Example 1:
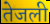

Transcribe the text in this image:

तेजली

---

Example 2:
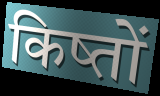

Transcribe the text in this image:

किष्तों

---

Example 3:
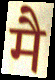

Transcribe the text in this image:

मै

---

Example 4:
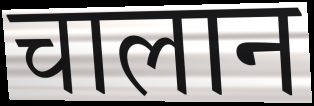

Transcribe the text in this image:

चालान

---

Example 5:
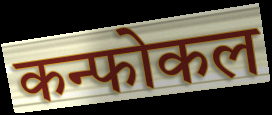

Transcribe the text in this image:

कन्फोकल